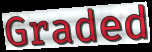
Graded